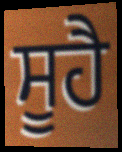
ਸੂਹੈ